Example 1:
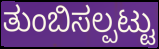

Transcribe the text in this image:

ತುಂಬಿಸಲ್ಪಟ್ಟು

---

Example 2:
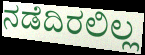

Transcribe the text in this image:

ನಡೆದಿರಲಿಲ್ಲ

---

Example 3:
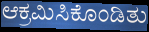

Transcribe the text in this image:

ಆಕ್ರಮಿಸಿಕೊಂಡಿತು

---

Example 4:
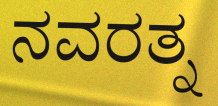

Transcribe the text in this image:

ನವರತ್ನ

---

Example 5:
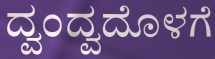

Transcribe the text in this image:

ದ್ವಂದ್ವದೊಳಗೆ